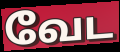
வேட